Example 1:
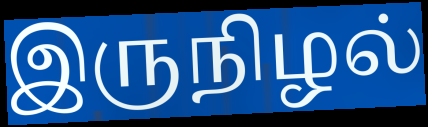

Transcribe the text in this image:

இருநிழல்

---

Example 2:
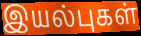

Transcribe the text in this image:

இயல்புகள்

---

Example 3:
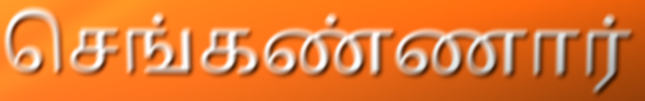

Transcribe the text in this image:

செங்கண்ணார்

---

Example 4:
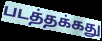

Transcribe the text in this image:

படத்தக்கது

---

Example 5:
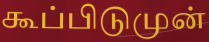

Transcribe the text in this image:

கூப்பிடுமுன்